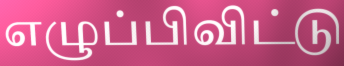
எழுப்பிவிட்டு